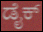
ಡೈಕ್